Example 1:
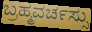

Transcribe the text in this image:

ಬ್ರಹ್ಮವರ್ಚಸ್ಸು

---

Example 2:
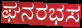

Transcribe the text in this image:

ಘನರಭಸ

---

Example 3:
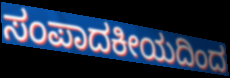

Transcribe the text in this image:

ಸಂಪಾದಕೀಯದಿಂದ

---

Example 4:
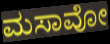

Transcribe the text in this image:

ಮಸಾವೋ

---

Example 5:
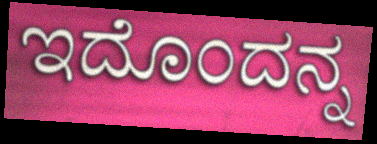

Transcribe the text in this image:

ಇದೊಂದನ್ನ